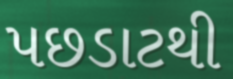
પછડાટથી